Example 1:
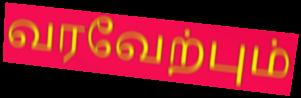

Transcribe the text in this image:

வரவேற்பும்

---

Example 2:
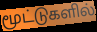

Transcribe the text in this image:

மூட்டுகளில்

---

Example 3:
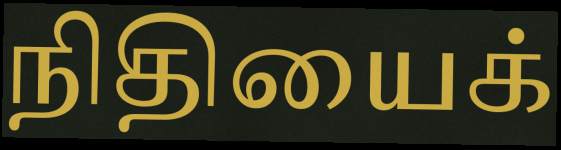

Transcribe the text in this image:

நிதியைக்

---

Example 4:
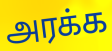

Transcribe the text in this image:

அரக்க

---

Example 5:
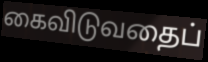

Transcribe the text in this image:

கைவிடுவதைப்